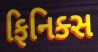
ફિનિક્સ